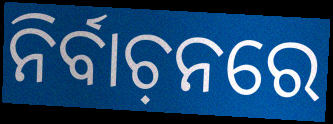
ନିର୍ବାଚ଼ନରେ